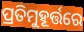
ପ୍ରତିମୁହୂର୍ତ୍ତରେ